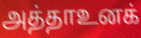
அத்தாஉனக்